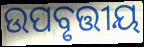
ଉପବୃତ୍ତୀୟ